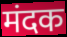
मंदक